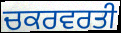
ਚਕਰਵਰਤੀ